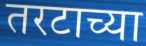
तरटाच्या